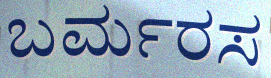
ಬರ್ಮರಸ